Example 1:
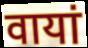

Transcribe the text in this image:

वायां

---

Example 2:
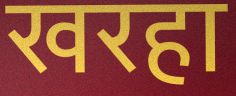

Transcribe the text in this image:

खरहा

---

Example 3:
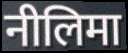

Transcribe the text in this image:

नीलिमा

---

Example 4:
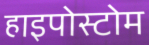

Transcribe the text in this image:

हाइपोस्टोम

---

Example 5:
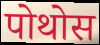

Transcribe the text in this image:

पोथोस